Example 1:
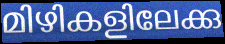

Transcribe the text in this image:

മിഴികളിലേക്കു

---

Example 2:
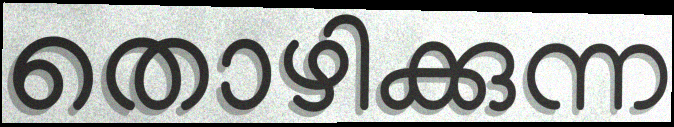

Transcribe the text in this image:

തൊഴിക്കുന്ന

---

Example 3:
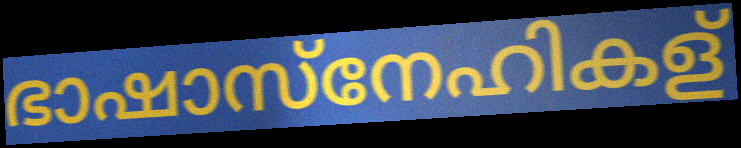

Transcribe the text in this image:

ഭാഷാസ്നേഹികള്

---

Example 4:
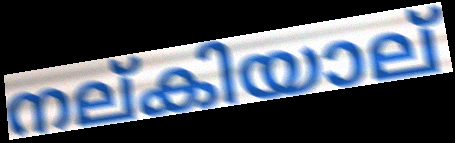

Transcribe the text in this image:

നല്കിയാല്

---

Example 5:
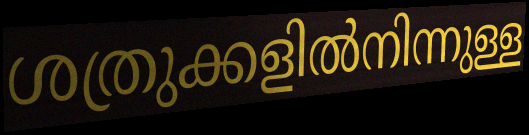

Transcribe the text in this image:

ശത്രുക്കളിൽനിന്നുള്ള